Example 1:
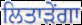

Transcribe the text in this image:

ਲਿਤਾੜੇਂਗਾ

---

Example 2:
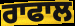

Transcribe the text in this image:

ਰਾਫਾਲ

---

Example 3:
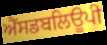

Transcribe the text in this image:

ਐੱਸਡਬਲਿਊਪੀ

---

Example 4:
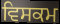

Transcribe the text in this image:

ਵਿਸਕਮ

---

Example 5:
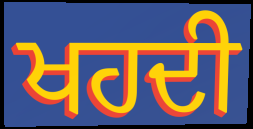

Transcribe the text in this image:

ਖਹਦੀ